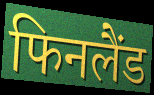
फिनलैंड